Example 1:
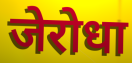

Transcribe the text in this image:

जेरोधा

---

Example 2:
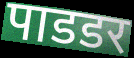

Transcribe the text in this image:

पाडडर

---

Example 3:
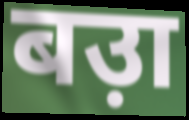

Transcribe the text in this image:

बउ़ा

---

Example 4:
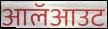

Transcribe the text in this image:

आलॅआउट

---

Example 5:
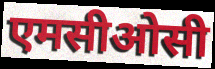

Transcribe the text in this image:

एमसीओसी